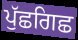
ਪੁੱਛਗਿਛ